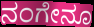
ನಂಗೇನೂ